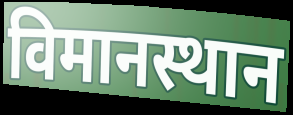
विमानस्थान